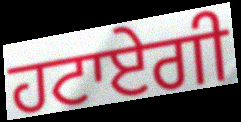
ਹਟਾਏਗੀ